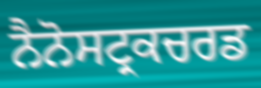
ਨੈਨੋਸਟ੍ਰਕਚਰਡ